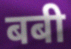
बबी